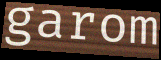
garom